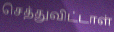
செத்துவிட்டாள்